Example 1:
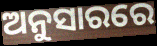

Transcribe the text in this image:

ଅନୁସାରରେ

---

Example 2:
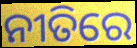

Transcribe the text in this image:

ନୀତିରେ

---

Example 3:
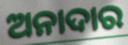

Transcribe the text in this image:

ଅନାଦାର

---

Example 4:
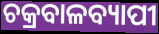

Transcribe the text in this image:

ଚକ୍ରବାଳବ୍ୟାପୀ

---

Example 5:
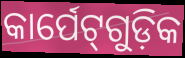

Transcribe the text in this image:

କାର୍ପେଟ୍‌ଗୁଡ଼ିକ